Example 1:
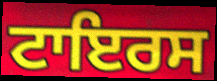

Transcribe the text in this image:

ਟਾਇਰਸ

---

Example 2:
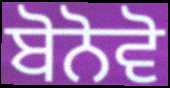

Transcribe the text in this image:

ਬੋਨੋਵੋ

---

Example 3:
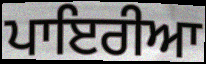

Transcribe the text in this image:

ਪਾਇਰੀਆ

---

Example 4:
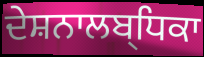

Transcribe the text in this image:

ਦੇਸ਼ਨਾਲਬ੍ਧਿਕਾ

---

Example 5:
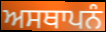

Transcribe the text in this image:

ਅਸਥਾਪਨੰ